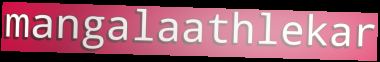
mangalaathlekar